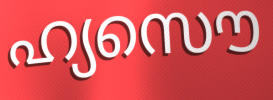
ഹ്യസൌ